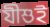
যীশুই